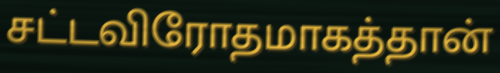
சட்டவிரோதமாகத்தான்